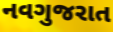
નવગુજરાત